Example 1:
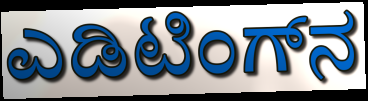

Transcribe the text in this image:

ಎಡಿಟಿಂಗ್‌ನ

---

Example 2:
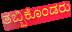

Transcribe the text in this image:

ತಬ್ಬಿಕೊಂಡರು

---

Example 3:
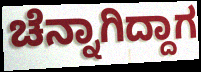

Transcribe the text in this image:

ಚೆನ್ನಾಗಿದ್ದಾಗ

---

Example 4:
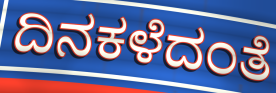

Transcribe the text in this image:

ದಿನಕಳೆದಂತೆ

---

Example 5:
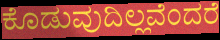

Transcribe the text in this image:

ಕೊಡುವುದಿಲ್ಲವೆಂದರೆ